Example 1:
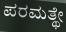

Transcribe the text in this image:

ಪರಮತ್ಥೇ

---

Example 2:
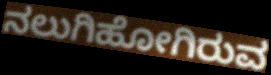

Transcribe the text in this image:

ನಲುಗಿಹೋಗಿರುವ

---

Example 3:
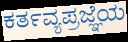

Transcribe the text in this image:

ಕರ್ತವ್ಯಪ್ರಜ್ಞೆಯ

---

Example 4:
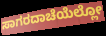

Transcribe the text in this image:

ಸಾಗರದಾಚೆಯೆಲ್ಲೋ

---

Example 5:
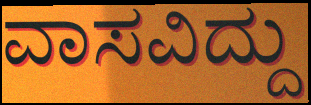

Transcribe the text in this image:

ವಾಸವಿದ್ದು